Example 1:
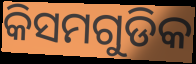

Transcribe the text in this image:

କିସମଗୁଡିକ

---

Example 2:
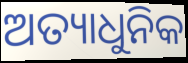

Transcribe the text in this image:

ଅତ୍ୟାଧୁନିକ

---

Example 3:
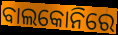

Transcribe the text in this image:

ବାଲକୋନିରେ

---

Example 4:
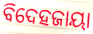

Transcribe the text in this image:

ବିଦେହଜାୟା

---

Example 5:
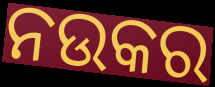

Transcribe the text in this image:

ନଉକର